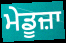
ਮੇਡੂਜ਼ਾ